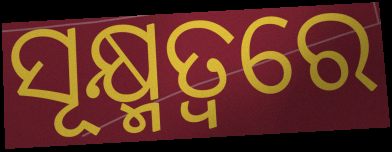
ସୂକ୍ଷ୍ମତ୍ୱରେ